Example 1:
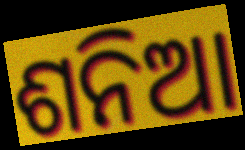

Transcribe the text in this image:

ଶନିଆ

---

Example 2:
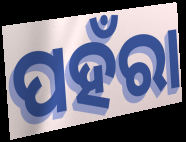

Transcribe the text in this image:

ପହଁରା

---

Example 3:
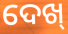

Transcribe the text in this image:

ଦେଖ୍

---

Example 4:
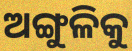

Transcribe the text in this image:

ଅଙ୍ଗୁଳିକୁ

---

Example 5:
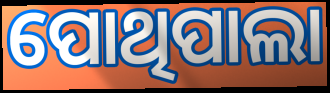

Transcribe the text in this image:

ପୋଥିପାଲା